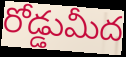
రోడ్డుమీద